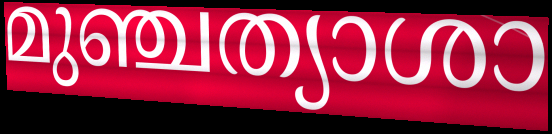
മുഞ്ചത്യാശാ